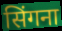
सिंगना